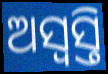
ଅସ୍ୱସ୍ତି